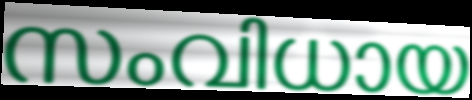
സംവിധായ